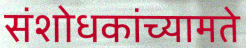
संशोधकांच्यामते